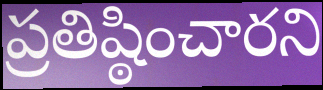
ప్రతిష్ఠించారని